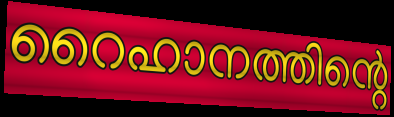
റൈഹാനത്തിന്റെ